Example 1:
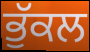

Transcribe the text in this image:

ਭੁੱਕਲ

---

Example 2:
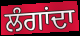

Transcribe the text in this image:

ਲੰਗਾਂਦਾ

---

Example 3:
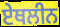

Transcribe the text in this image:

ਏਥਲੀਨ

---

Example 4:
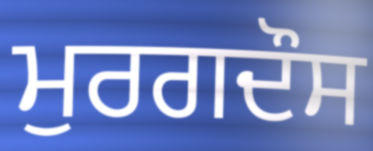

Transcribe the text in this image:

ਮੁਰਗਦੌਸ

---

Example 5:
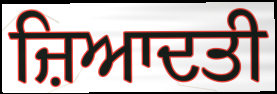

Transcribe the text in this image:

ਜ਼ਿਆਦਤੀ